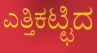
ಎತ್ತಿಕಟ್ಟಿದ